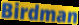
Birdman